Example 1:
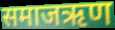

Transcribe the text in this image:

समाजऋण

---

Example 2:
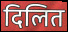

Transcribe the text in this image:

दिलित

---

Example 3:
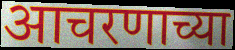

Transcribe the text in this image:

आचरणाच्या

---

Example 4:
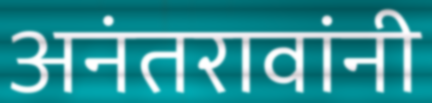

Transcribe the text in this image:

अनंतरावांनी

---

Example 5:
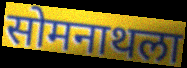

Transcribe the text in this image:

सोमनाथला